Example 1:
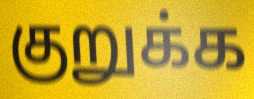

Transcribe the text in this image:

குறுக்க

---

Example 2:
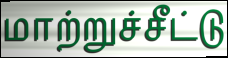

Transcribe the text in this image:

மாற்றுச்சீட்டு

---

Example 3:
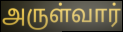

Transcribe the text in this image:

அருள்வார்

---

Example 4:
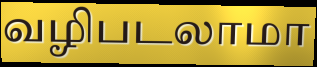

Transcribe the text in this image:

வழிபடலாமா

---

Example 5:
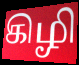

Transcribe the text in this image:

கிழி